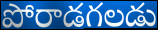
పోరాడగలడు